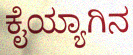
ಕೈಯ್ಯಾಗಿನ